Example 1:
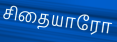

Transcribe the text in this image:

சிதையாரோ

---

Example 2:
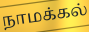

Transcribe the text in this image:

நாமக்கல்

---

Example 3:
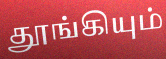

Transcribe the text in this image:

தூங்கியும்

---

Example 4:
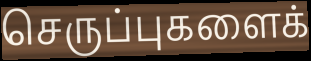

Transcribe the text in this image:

செருப்புகளைக்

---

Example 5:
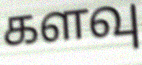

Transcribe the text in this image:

களவு